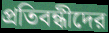
প্রতিবন্ধীদের